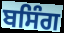
ਬਸਿੰਗ